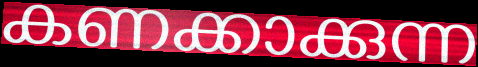
കണക്കാക്കുന്ന